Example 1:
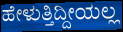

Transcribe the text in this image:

ಹೇಳುತ್ತಿದ್ದೀಯಲ್ಲ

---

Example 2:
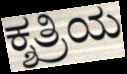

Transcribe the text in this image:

ಕ್ಶತ್ರಿಯ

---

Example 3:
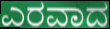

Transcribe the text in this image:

ಎರವಾದ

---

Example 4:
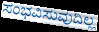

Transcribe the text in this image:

ಸಂಭವಿಸುವುದಿಲ್ಲ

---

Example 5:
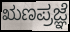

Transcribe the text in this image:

ಋಣಪ್ರಜ್ಞೆ